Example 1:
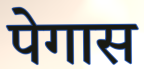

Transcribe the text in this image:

पेगास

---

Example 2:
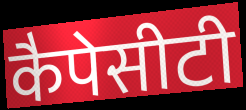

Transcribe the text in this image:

कैपेसीटी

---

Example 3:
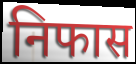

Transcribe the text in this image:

निफास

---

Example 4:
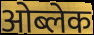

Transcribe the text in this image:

ओब्लेक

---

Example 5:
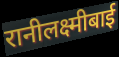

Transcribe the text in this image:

रानीलक्ष्मीबाई